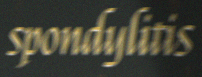
spondylitis